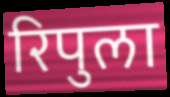
रिपुला